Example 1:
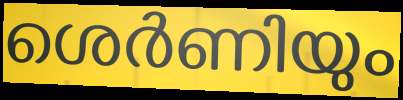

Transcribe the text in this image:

ശെർണിയും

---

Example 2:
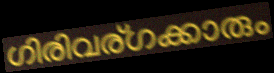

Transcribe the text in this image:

ഗിരിവര്ഗക്കാരും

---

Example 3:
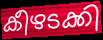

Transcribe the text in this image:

കീഴടക്കി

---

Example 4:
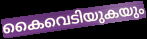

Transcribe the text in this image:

കൈവെടിയുകയും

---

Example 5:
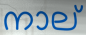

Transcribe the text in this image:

നാല്